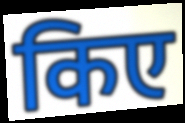
किए